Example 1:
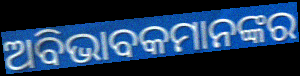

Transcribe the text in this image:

ଅବିଭାବକମାନଙ୍କର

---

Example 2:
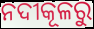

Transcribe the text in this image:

ନଦୀକୂଳରୁ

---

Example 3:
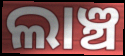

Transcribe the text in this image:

ଲାଞ୍ଚ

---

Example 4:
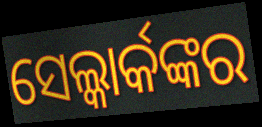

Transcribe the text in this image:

ସେଲ୍କାର୍କଙ୍କର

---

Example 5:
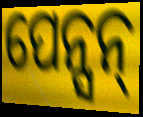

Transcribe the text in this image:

ପେନ୍ସନ୍